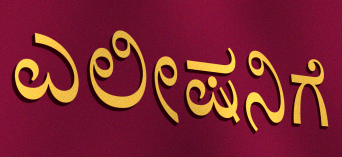
ಎಲೀಷನಿಗೆ